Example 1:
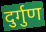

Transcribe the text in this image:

दुर्गुण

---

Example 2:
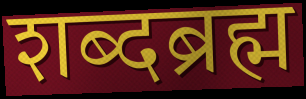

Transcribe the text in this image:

शब्दब्रह्म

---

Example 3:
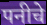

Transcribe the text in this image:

पनीचे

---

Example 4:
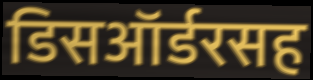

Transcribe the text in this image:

डिसऑर्डरसह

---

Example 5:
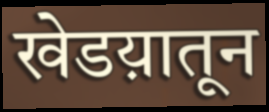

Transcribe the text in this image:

खेडय़ातून